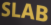
SLAB